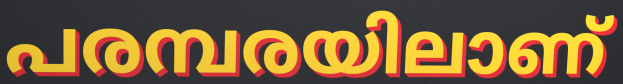
പരമ്പരയിലാണ്